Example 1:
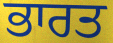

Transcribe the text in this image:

ਭਾਰਤ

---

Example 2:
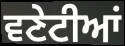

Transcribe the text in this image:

ਵਣੇਟੀਆਂ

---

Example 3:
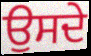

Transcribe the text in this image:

ਉਸਦੇ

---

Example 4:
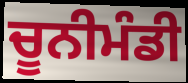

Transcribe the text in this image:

ਚੂਨੀਮੰਡੀ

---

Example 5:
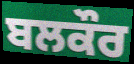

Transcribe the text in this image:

ਬਲਕੌਰ